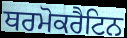
ਥਰਮੋਕਰੈਟਿਨ